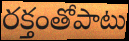
రక్తంతోపాటు